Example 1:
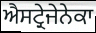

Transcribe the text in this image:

ਐਸਟ੍ਰੇਜੇਨੇਕਾ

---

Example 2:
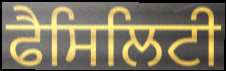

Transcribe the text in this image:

ਫੈਸਿਲਿਟੀ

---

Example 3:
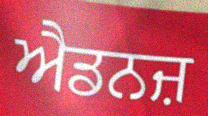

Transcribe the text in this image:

ਐਡਨਜ਼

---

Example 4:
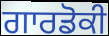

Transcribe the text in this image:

ਗਾਰਡੋਕੀ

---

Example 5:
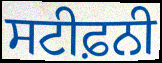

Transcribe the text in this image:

ਸਟੀਫ਼ਨੀ